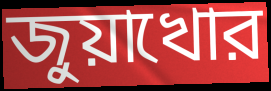
জুয়াখোর